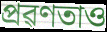
প্ৰৱণতাও